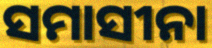
ସମାସୀନା